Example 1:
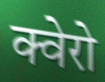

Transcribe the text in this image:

क्वेरो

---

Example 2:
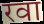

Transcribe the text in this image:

रवा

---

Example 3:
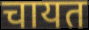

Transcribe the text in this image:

चायत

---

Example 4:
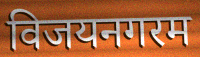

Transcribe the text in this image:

विजयनगरम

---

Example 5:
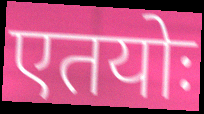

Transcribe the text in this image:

एतयोः